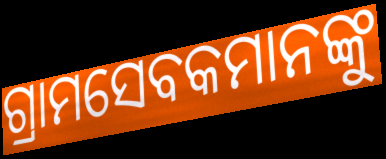
ଗ୍ରାମସେବକମାନଙ୍କୁ